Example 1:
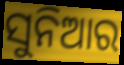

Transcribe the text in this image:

ସୁନିଆର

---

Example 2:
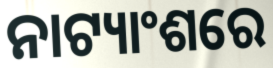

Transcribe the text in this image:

ନାଟ୍ୟାଂଶରେ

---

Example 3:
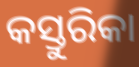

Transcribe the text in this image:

କସ୍ତୁରିକା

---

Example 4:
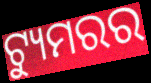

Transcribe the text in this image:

ଟ୍ୟୁମରର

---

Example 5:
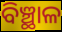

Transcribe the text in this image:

ବିଞ୍ଛାଳ